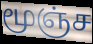
மூஞ்ச